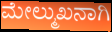
ಮೇಲ್ಮುಖನಾಗಿ